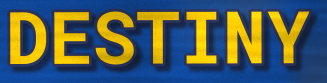
DESTINY